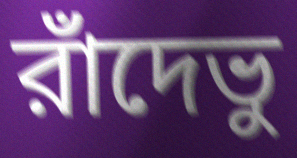
রাঁদেভু